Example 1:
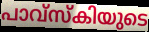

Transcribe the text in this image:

പാവ്സ്കിയുടെ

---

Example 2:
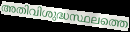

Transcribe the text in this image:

അതിവിശുദ്ധസ്ഥലത്തെ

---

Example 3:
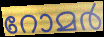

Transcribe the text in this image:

റോമർ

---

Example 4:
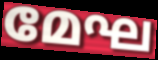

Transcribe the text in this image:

മേഘ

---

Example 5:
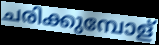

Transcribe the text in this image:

ചരിക്കുമ്പോള്